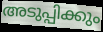
അടുപ്പിക്കും